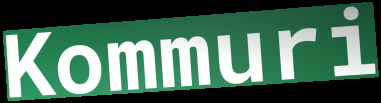
Kommuri